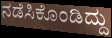
ನಡೆಸಿಕೊಂಡಿದ್ದು